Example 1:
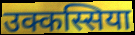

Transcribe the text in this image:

उक्कस्सिया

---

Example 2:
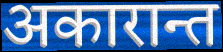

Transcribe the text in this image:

अकारान्त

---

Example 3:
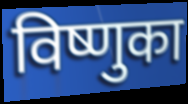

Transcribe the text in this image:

विष्णुका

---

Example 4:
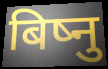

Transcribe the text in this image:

बिष्नु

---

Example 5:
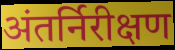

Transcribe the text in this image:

अंतर्निरीक्षण